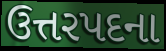
ઉત્તરપદના